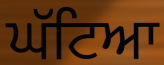
ਘੱਟਿਆ